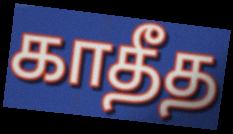
காதீத